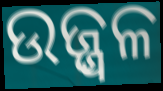
ଉଜ୍ଜ୍ବଳ